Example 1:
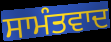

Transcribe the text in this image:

ਸਾਮੰਤਵਾਦ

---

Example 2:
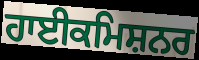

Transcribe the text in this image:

ਹਾਈਕਮਿਸ਼ਨਰ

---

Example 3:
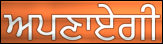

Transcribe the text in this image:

ਅਪਣਾਏਗੀ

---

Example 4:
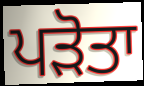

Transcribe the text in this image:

ਪੜੋਤਾ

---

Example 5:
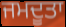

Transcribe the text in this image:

ਜਮਦੂਤਾ